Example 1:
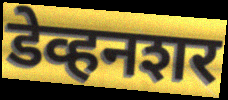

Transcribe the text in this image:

डेव्हनशर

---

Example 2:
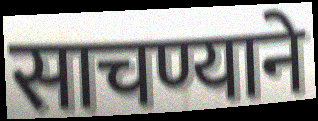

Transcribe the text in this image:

साचण्याने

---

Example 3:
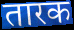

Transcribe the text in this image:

तारक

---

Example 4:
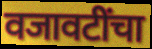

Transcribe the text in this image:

वजावटींचा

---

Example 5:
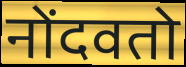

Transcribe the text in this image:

नोंदवतो